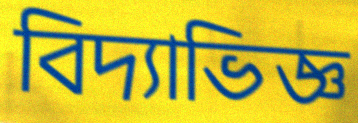
বিদ্যাভিজ্ঞ